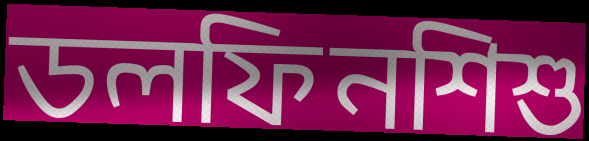
ডলফিনশিশু